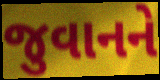
જુવાનને